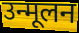
उन्‍मूलन